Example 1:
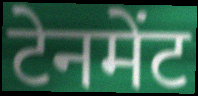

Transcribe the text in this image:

टेनमेंट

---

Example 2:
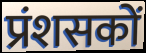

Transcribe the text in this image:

प्रंशसकों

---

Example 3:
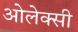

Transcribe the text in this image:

ओलेक्सी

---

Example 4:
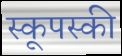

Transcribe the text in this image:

स्कूपस्की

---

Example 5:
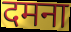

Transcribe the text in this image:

दमना